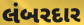
લંબરદાર